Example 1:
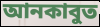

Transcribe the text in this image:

আনকাবুত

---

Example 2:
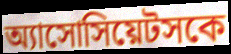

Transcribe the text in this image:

অ্যাসোসিয়েটসকে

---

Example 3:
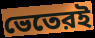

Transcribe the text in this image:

ভেতেরই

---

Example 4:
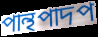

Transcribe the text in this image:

পান্থপাদপ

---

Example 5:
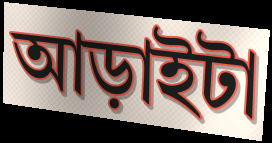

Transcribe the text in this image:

আড়াইটা